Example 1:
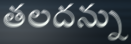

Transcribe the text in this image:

తలదన్ను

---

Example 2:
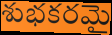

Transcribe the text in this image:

శుభకరమై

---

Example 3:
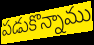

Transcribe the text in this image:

పడుకొన్నాము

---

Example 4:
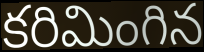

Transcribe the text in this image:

కరిమింగిన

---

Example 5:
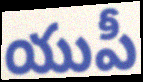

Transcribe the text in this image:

యుపీ